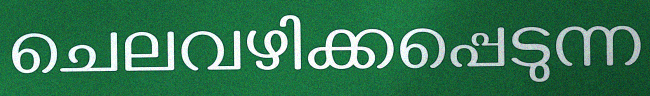
ചെലവഴിക്കപ്പെടുന്ന